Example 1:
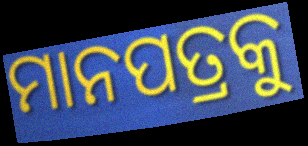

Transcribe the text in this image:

ମାନପତ୍ରକୁ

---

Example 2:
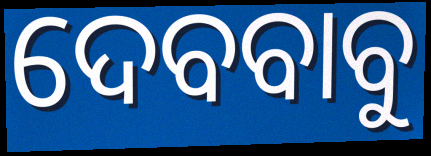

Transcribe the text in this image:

ଦେବବାବୁ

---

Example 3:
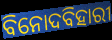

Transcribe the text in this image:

ବିନୋଦବିହାରୀ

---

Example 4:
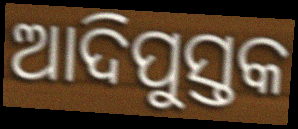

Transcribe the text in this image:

ଆଦିପୁସ୍ତକ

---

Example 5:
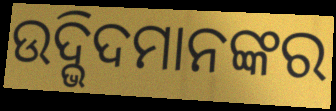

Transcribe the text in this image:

ଉଦ୍ଭିଦମାନଙ୍କର